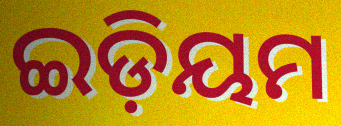
ଇଡ଼ିୟମ